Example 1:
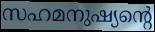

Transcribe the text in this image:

സഹമനുഷ്യന്റെ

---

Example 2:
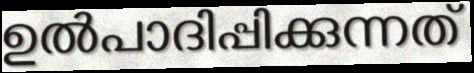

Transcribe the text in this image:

ഉൽപാദിപ്പിക്കുന്നത്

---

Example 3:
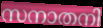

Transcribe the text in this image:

സനാതനി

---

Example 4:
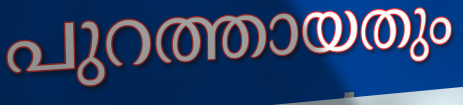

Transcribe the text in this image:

പുറത്തായതും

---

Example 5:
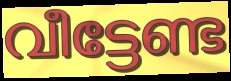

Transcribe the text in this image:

വീട്ടേണ്ട